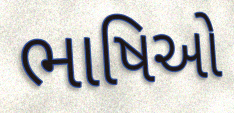
ભાષિઓ